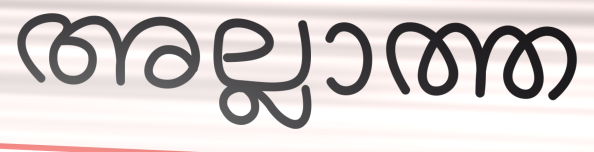
അല്ലാത്ത